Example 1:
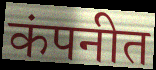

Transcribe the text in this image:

कंपनीत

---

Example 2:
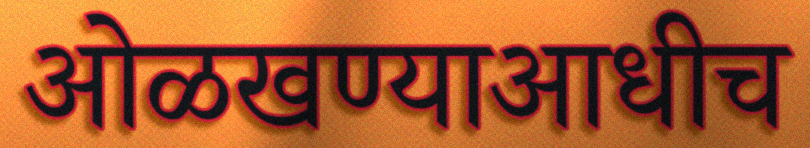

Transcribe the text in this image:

ओळखण्याआधीच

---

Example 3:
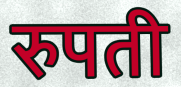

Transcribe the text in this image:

रुपती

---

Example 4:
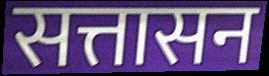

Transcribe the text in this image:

सत्तासन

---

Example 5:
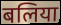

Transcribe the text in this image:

बलिया